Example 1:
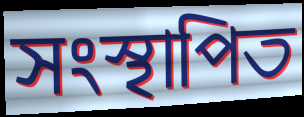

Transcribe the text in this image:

সংস্থাপিত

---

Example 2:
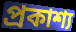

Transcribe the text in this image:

প্ৰকাশ্য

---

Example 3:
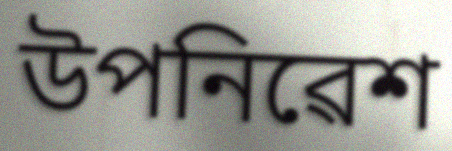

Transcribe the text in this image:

উপনিৱেশ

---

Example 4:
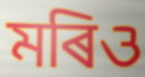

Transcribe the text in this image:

মৰিও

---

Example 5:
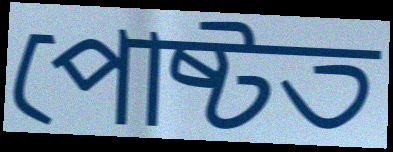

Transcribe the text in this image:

পোষ্টত